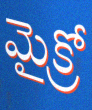
మైక్రో